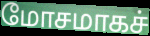
மோசமாகச்